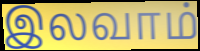
இலவாம்